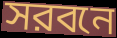
সরবনে